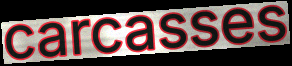
carcasses